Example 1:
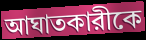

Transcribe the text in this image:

আঘাতকারীকে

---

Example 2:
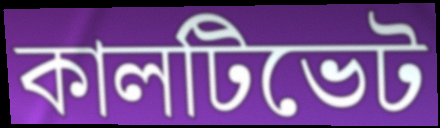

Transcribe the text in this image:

কালটিভেট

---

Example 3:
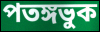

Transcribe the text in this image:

পতঙ্গভুক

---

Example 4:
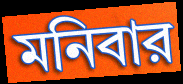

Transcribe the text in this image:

মনিবার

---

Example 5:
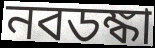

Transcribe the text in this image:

নবডঙ্কা